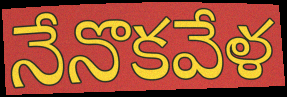
నేనొకవేళ